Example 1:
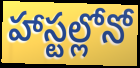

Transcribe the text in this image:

హాస్టల్లోనో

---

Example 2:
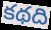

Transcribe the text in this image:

కథది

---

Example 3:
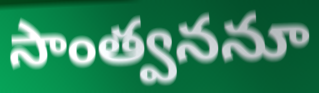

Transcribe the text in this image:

సాంత్వననూ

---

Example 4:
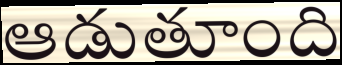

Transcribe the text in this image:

ఆడుతూంది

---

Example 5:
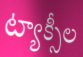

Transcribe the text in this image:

ట్యాక్సీల